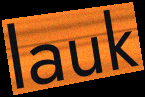
lauk